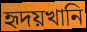
হৃদয়খানি